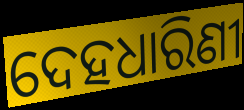
ଦେହଧାରିଣୀ